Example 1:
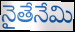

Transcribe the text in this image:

నైతేనేమి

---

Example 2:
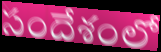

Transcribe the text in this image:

సందేశంలో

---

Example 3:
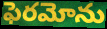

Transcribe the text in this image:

ఫెరమోను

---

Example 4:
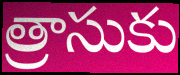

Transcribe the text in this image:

త్రాసుకు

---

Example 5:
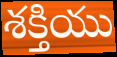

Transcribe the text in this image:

శక్తియు